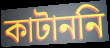
কাটাননি